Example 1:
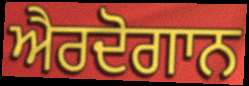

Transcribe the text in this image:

ਐਰਦੋਗਾਨ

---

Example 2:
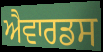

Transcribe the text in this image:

ਐਵਾਰਡਸ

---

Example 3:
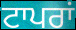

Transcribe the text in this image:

ਟਾਪਰਾਂ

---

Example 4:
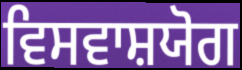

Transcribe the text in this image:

ਵਿਸਵਾਸ਼ਯੋਗ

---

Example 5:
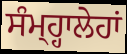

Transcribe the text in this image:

ਸੰਮ੍ਹ੍ਹਾਲੇਹਾਂ